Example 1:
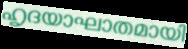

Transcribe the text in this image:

ഹൃദയാഘാതമായി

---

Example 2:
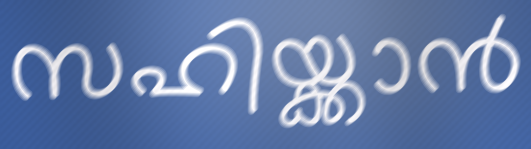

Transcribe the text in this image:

സഹിയ്ക്കാൻ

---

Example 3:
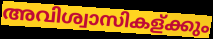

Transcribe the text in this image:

അവിശ്വാസികള്ക്കും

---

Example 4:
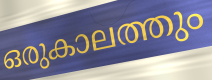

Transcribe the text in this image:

ഒരുകാലത്തും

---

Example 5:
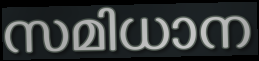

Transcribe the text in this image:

സമിധാന